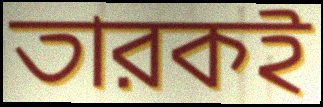
তারকই